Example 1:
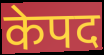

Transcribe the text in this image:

केपद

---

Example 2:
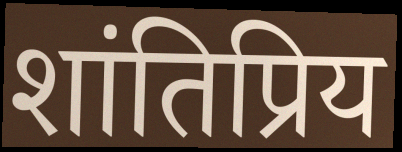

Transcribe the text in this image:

शांतिप्रिय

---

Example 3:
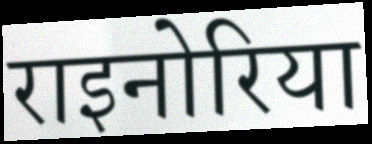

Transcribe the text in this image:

राइनोरिया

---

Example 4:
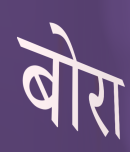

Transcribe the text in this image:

बोरा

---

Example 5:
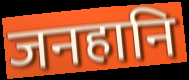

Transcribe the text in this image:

जनहानि